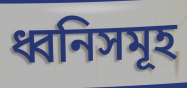
ধ্বনিসমূহ